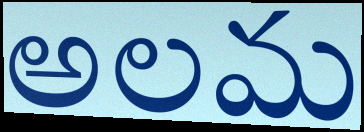
అలమ